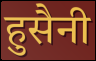
हुसैनी